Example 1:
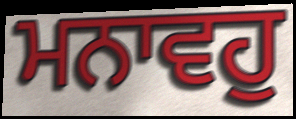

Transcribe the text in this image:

ਮਨਾਵਹੁ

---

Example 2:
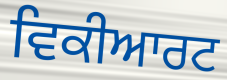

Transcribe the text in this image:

ਵਿਕੀਆਰਟ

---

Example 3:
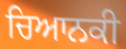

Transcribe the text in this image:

ਚਿਆਨਕੀ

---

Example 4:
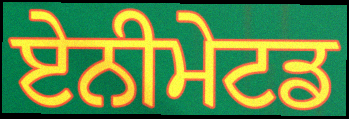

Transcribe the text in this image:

ਏਨੀਮੇਟਡ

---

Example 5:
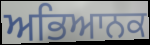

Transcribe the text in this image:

ਅਭਿਆਨਕ